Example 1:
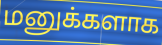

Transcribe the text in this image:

மனுக்களாக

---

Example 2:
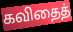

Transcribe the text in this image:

கவிதைத்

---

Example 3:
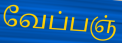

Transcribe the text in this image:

வேப்பஞ்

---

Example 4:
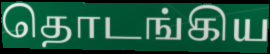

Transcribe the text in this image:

தொடங்கிய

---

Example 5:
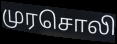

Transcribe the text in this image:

முரசொலி